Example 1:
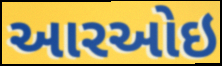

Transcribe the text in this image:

આરઓઇ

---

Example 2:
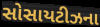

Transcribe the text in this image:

સોસાયટીઝના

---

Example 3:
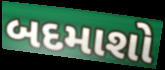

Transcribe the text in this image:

બદમાશો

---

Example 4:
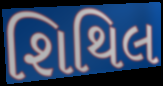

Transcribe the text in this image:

શિથિલ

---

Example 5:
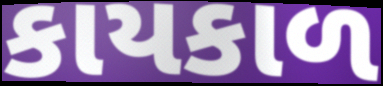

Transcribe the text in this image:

કાયકાળ